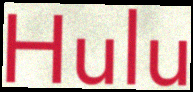
Hulu